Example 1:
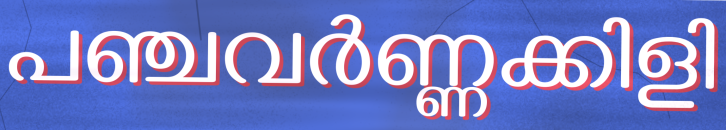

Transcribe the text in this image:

പഞ്ചവർണ്ണക്കിളി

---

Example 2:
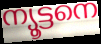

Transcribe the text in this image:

ന്യൂട്ടനെ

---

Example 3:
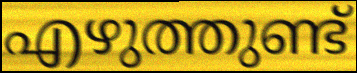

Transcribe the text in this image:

എഴുത്തുണ്ട്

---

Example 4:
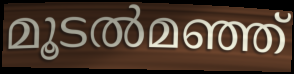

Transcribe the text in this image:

മൂടൽമഞ്ഞ്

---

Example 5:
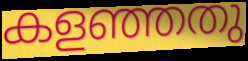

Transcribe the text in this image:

കളഞ്ഞതു